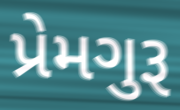
પ્રેમગુરૂ